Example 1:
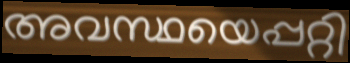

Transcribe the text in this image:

അവസ്ഥയെപ്പറ്റി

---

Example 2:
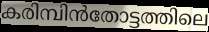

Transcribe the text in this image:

കരിമ്പിൻതോട്ടത്തിലെ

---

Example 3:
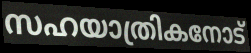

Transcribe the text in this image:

സഹയാത്രികനോട്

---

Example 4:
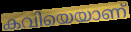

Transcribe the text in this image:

കവിയെയാണ്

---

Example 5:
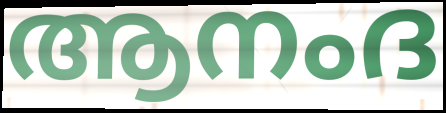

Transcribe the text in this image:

ആനംദ